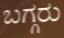
ಬಗ್ಗರು